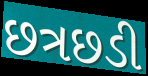
છત્રછડી